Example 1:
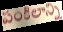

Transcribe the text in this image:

పంకిలాన్ని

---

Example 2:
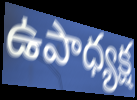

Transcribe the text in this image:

ఉపాధ్యక్ష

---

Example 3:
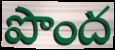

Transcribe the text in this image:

పొంద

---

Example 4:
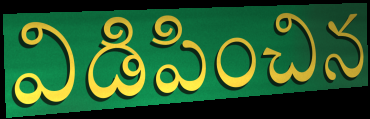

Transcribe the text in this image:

విడిపించిన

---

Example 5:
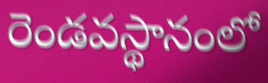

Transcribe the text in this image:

రెండవస్థానంలో